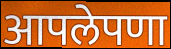
आपलेपणा